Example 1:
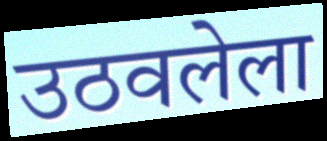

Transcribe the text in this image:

उठवलेला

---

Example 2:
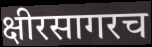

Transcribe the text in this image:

क्षीरसागरच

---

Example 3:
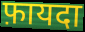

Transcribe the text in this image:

फ़ायदा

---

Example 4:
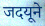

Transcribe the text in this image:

जदयूने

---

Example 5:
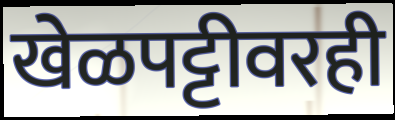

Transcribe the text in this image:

खेळपट्टीवरही